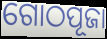
ଗୋଠପୂଜା